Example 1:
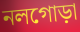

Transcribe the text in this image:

নলগোড়া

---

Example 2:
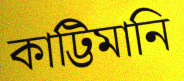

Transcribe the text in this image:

কাট্টিমানি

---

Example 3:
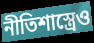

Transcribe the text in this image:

নীতিশাস্ত্রেও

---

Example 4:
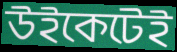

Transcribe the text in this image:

উইকেটেই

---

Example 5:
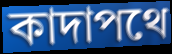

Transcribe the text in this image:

কাদাপথে